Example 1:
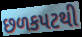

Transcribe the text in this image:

છળકપટથી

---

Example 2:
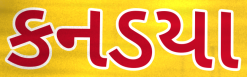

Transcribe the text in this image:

કનડયા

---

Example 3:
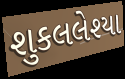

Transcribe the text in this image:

શુકલલેશ્યા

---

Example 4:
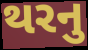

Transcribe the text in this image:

થરનુ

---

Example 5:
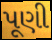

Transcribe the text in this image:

પૂણી